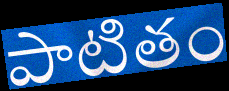
పాటితం